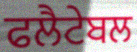
ਫਲੈਟੇਬਲ